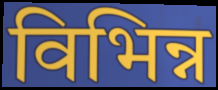
विभिन्न